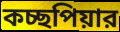
কচ্ছপিয়ার